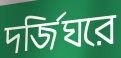
দর্জিঘরে